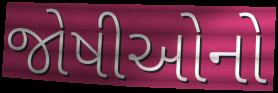
જોષીઓનો